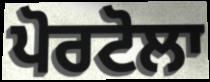
ਪੋਰਟੋਲਾ